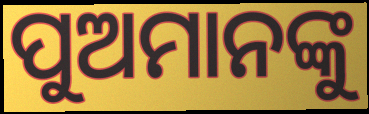
ପୁଅମାନଙ୍କୁ